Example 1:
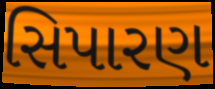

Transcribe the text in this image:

સિપારણ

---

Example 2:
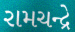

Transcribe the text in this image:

રામચન્દ્રે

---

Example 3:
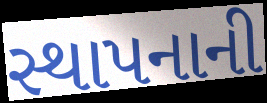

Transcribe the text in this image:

સ્થાપનાની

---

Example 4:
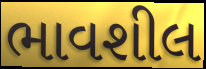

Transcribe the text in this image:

ભાવશીલ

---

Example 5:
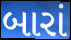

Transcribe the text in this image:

બારાં